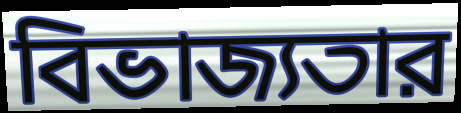
বিভাজ্যতার